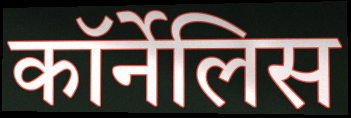
कॉर्नेलिस